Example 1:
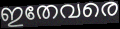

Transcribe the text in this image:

ഇതേവരെ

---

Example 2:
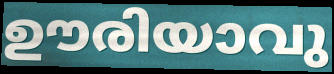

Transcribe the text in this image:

ഊരിയാവു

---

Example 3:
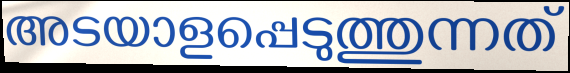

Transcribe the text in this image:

അടയാളപ്പെടുത്തുന്നത്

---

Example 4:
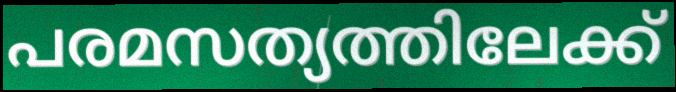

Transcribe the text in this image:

പരമസത്യത്തിലേക്ക്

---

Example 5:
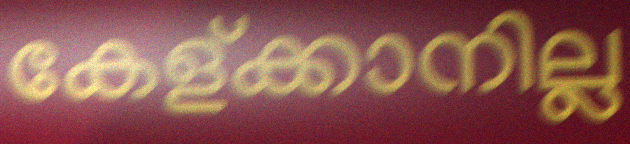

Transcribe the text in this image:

കേള്ക്കാനില്ല